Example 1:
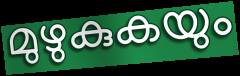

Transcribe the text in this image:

മുഴുകുകയും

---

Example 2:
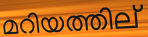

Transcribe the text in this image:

മറിയത്തില്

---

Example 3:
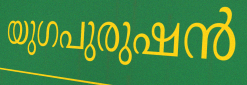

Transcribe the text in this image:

യുഗപുരുഷൻ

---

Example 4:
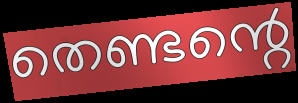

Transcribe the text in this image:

തെണ്ടന്റെ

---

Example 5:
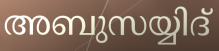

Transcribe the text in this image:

അബുസയ്യിദ്